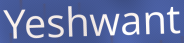
Yeshwant